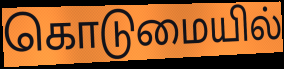
கொடுமையில்